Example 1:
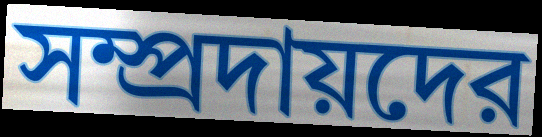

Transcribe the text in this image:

সম্প্রদায়দের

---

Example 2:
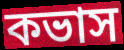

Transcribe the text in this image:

কভাস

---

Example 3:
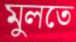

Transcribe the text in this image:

মুলতে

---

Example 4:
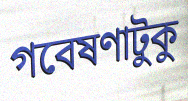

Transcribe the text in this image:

গবেষণাটুকু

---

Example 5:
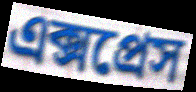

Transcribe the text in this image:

এক্সপ্রেস